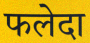
फलेदा